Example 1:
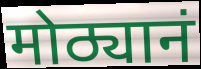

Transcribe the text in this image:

मोठ्यानं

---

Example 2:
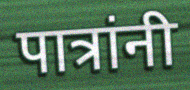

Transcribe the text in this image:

पात्रांनी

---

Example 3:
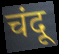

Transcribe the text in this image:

चंदू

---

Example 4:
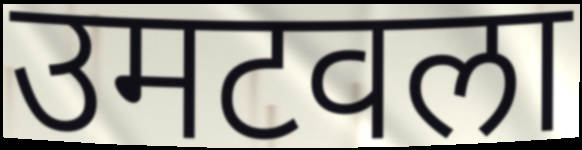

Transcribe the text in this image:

उमटवला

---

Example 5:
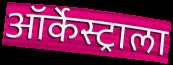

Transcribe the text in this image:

ऑर्केस्ट्राला